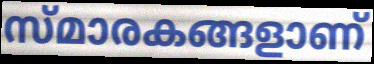
സ്മാരകങ്ങളാണ്